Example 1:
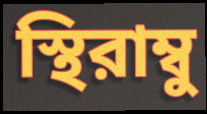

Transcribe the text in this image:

স্থিরাম্বু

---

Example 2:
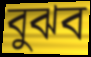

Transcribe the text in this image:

বুঝব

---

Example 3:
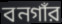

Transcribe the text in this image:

বনগাঁর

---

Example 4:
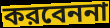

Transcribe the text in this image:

করবেননা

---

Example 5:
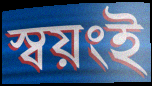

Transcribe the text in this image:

স্বয়ংই